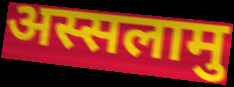
अस्सलामु